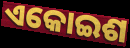
ଏକୋଇଶ